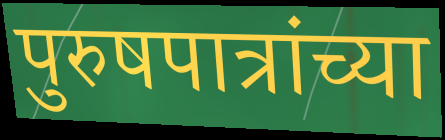
पुरुषपात्रांच्या